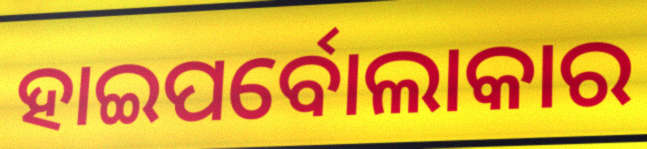
ହାଇପର୍ବୋଲାକାର